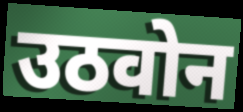
उठवोन